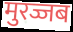
मुरज्जब